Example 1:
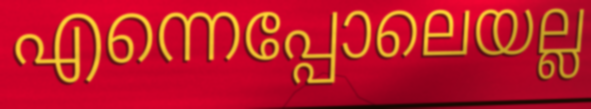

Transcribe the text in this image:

എന്നെപ്പോലെയല്ല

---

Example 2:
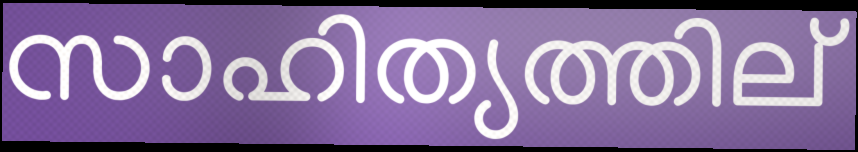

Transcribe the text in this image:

സാഹിത്യത്തില്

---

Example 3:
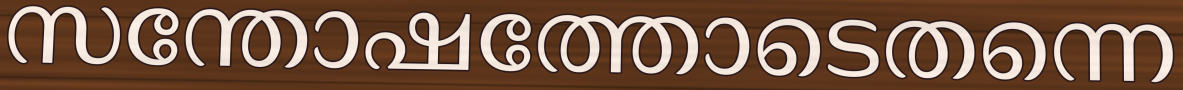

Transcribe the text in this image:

സന്തോഷത്തോടെതന്നെ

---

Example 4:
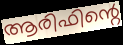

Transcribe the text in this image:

ആരിഫിന്റെ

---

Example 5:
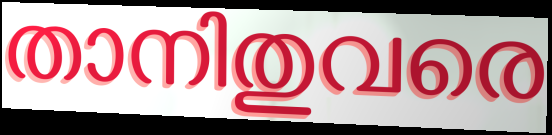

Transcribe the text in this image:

താനിതുവരെ